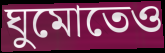
ঘুমোতেও